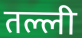
तल्ली